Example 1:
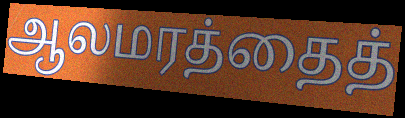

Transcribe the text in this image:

ஆலமரத்தைத்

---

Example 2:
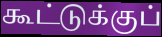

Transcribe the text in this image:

கூட்டுக்குப்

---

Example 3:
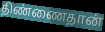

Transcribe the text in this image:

திண்ணைதான்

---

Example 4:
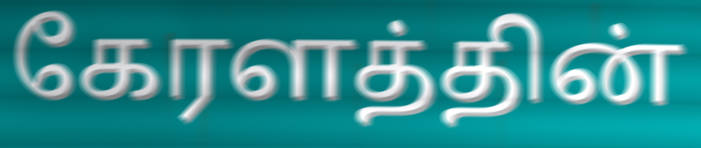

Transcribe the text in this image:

கேரளத்தின்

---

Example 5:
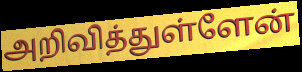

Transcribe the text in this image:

அறிவித்துள்ளேன்